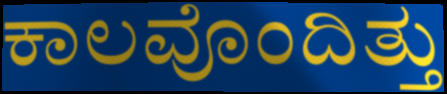
ಕಾಲವೊಂದಿತ್ತು